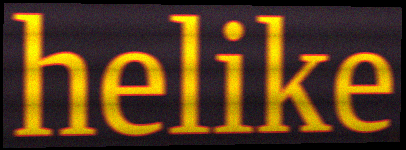
helike